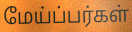
மேய்ப்பர்கள்